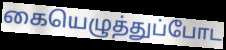
கையெழுத்துப்போட